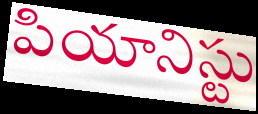
పియానిస్టు